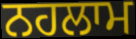
ਨਹਲਾਮ